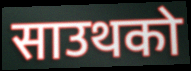
साउथको